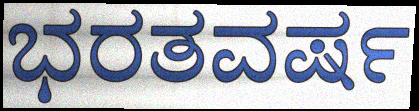
ಭರತವರ್ಷ